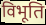
विभूति